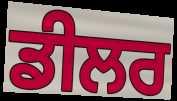
ਡੀਲਰ